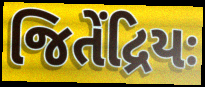
જિતેંદ્રિયઃ